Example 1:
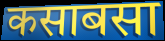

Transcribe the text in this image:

कसाबसा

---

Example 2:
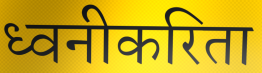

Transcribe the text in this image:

ध्वनीकरिता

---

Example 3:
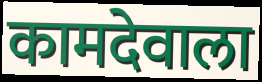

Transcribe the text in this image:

कामदेवाला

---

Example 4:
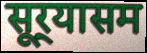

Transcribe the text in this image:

सूर्यासम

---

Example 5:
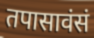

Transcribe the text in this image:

तपासावंसं